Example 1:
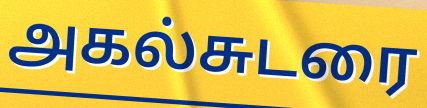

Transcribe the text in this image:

அகல்சுடரை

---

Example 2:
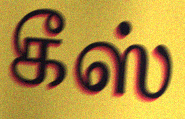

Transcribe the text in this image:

கீஸ்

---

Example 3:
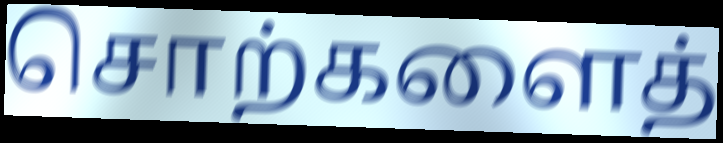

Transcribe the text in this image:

சொற்களைத்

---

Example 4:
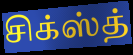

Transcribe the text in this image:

சிக்ஸ்த்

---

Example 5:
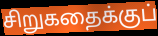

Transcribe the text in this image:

சிறுகதைக்குப்